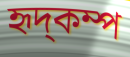
হৃদ্কম্প